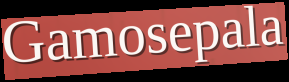
Gamosepala